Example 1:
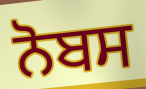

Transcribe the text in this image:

ਨੋਬਸ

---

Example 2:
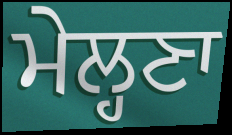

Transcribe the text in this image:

ਮੇਲ੍ਹਣਾ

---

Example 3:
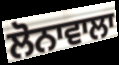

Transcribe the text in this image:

ਲੋਨਾਵਾਲਾ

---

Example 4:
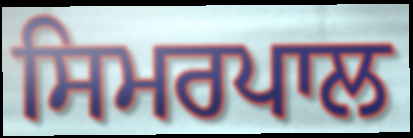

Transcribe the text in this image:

ਸਿਮਰਪਾਲ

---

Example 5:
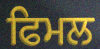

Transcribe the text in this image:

ਫਿਮਲ